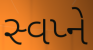
સ્વપ્ને